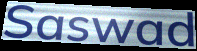
Saswad